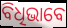
ବିଧିଭାବେ